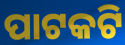
ପାଟକଟି